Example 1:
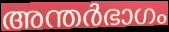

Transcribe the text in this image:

അന്തർഭാഗം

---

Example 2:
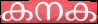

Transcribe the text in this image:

കനക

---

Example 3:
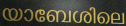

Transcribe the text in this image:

യാബേശിലെ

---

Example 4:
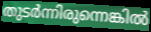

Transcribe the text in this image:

തുടർന്നിരുന്നെങ്കിൽ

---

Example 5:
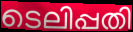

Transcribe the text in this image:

ടെലിപ്പതി